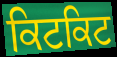
ਕਿਟਕਿਟ